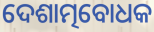
ଦେଶାତ୍ମବୋଧକ